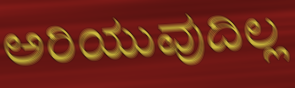
ಅರಿಯುವುದಿಲ್ಲ